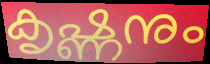
കൃഷ്ണനും